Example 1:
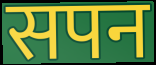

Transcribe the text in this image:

सपन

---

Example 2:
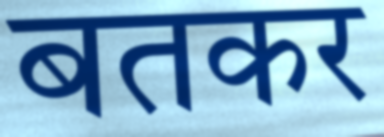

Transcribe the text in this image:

बतकर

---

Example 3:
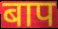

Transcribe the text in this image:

बाप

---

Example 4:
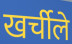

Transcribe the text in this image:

खर्चीले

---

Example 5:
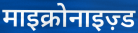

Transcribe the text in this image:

माइक्रोनाइज़्ड